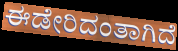
ಈಡೇರಿದಂತಾಗಿದೆ